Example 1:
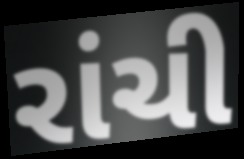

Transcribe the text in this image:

રાંચી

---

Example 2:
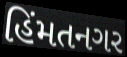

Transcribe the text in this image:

હિંમતનગર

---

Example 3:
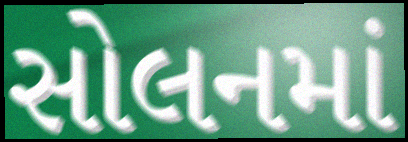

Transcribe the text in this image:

સોલનમાં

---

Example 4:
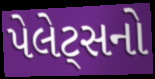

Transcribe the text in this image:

પેલેટ્સનો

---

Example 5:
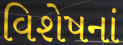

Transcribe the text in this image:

વિશેષનાં